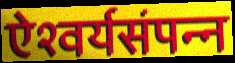
ऐश्वर्यसंपन्न